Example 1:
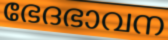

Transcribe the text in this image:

ഭേദഭാവന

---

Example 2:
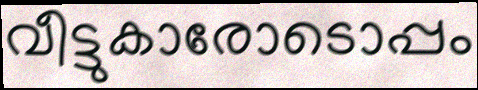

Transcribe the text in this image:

വീട്ടുകാരോടൊപ്പം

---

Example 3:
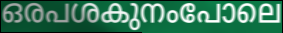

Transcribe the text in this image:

ഒരപശകുനംപോലെ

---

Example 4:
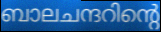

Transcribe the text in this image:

ബാലചന്ദറിന്റെ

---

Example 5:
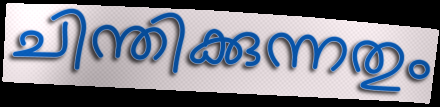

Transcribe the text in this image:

ചിന്തിക്കുന്നതും